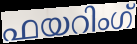
ഫയറിംഗ്